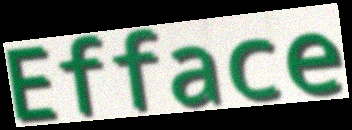
Efface